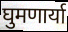
घुमणार्या